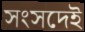
সংসদেই